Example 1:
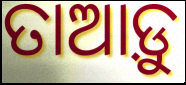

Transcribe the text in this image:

ତାଆଡ଼ୁ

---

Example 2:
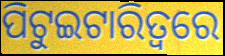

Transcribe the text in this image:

ପିଟୁଇଟାରିତ୍ୱରେ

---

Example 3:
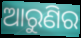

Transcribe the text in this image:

ଆରୁଣିର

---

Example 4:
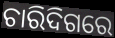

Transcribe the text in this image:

ଚାରିଦିଗରେ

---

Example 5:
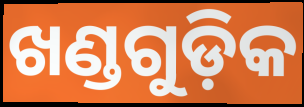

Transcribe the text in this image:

ଖଣ୍ଡଗୁଡ଼ିକ